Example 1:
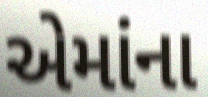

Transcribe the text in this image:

એમાંના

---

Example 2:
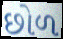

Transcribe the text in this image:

છોળ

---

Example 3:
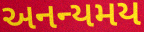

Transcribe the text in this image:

અનન્યમય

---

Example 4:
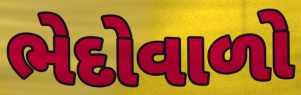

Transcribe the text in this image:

ભેદોવાળો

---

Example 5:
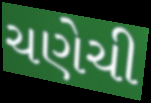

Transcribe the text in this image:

ચણેચી